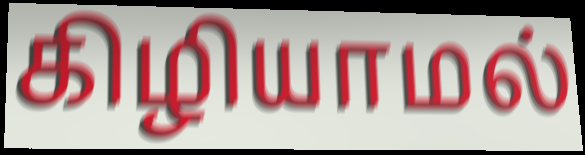
கிழியாமல்